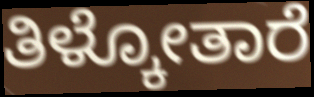
ತಿಳ್ಕೋತಾರೆ